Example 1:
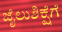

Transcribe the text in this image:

ಜೈಲುಶಿಕ್ಷೆಗೆ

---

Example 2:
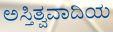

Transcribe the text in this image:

ಅಸ್ತಿತ್ವವಾದಿಯ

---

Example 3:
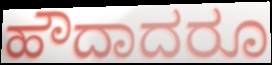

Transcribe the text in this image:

ಹೌದಾದರೂ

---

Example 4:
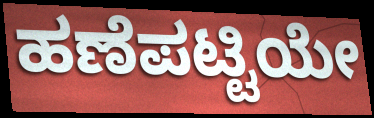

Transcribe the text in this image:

ಹಣೆಪಟ್ಟಿಯೇ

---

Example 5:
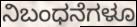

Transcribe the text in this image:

ನಿಬಂಧನೆಗಳೂ